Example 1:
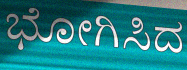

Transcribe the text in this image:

ಭೋಗಿಸಿದ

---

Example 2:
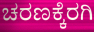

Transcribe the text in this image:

ಚರಣಕ್ಕೆರಗಿ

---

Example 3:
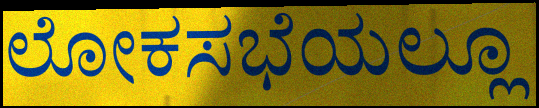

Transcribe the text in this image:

ಲೋಕಸಭೆಯಲ್ಲೂ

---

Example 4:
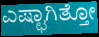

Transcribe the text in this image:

ಎಷ್ಟಾಗಿತ್ತೋ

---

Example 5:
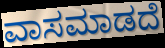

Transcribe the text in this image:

ವಾಸಮಾಡದೆ